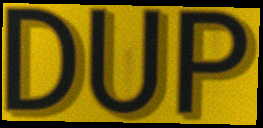
DUP